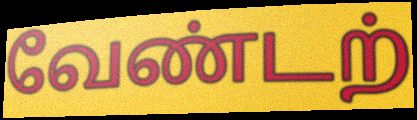
வேண்டற்